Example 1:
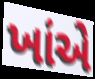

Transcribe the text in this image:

ખાંએ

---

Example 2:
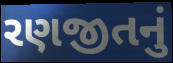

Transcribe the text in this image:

રણજીતનું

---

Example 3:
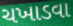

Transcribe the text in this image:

ચખાડવા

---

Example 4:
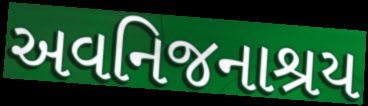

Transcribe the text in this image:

અવનિજનાશ્રય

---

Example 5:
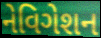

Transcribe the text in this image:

નેવિગેશન